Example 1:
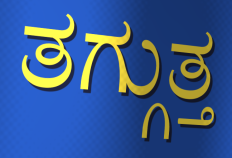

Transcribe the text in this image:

ತಗ್ಗುತ್ತ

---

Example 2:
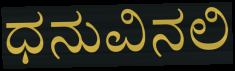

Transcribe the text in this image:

ಧನುವಿನಲಿ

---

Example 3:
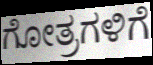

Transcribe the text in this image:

ಗೋತ್ರಗಳಿಗೆ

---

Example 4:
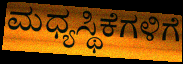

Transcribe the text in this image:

ಮಧ್ಯಸ್ಥಿಕೆಗಳಿಗೆ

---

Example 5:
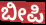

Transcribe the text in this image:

ಬೀಪಿ